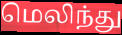
மெலிந்து